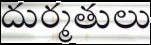
దుర్మతులు